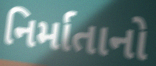
નિર્માતાનો